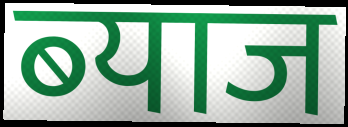
ब्‍याज